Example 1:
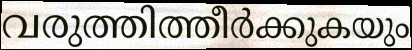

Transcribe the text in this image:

വരുത്തിത്തീർക്കുകയും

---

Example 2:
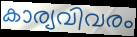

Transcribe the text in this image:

കാര്യവിവരം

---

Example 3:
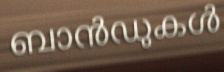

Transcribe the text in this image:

ബാൻഡുകൾ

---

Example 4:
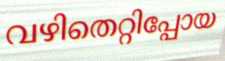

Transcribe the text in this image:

വഴിതെറ്റിപ്പോയ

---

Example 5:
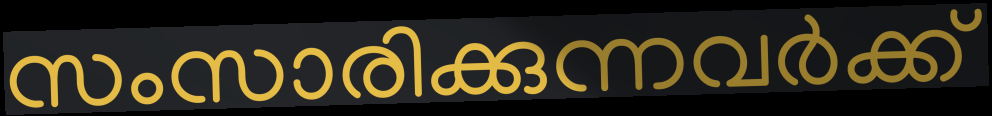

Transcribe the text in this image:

സംസാരിക്കുന്നവർക്ക്